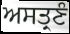
ਅਸਤ੍ਰਣੰ